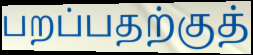
பறப்பதற்குத்